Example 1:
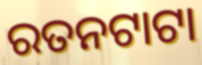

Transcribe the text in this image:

ରତନଟାଟା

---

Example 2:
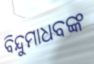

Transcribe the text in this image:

ବିନ୍ଦୁମାଧବଙ୍କ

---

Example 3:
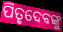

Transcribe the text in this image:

ପିତୃଦେବଙ୍କୁ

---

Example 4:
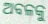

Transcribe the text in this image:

ଅବଳକୁ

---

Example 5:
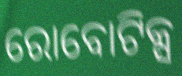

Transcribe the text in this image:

ରୋବୋଟିକ୍ସ